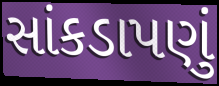
સાંકડાપણું